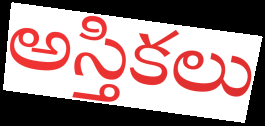
అస్తికలు